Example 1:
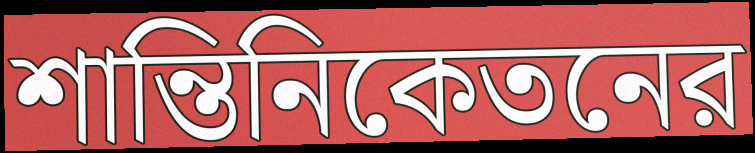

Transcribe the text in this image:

শান্তিনিকেতনের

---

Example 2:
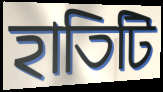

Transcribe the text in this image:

হাতিটি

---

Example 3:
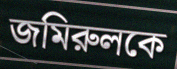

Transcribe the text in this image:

জমিরুলকে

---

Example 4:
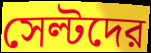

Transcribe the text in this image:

সেল্টদের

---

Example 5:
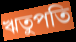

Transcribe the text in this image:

ঋতুপতি